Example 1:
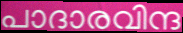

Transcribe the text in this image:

പാദാരവിന്ദ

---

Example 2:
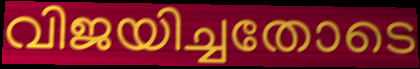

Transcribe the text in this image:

വിജയിച്ചതോടെ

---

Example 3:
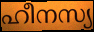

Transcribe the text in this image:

ഹീനസ്യ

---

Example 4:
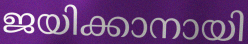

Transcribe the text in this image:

ജയിക്കാനായി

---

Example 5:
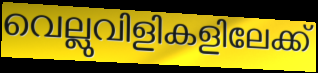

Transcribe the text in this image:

വെല്ലുവിളികളിലേക്ക്